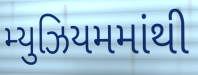
મ્યુઝિયમમાંથી